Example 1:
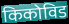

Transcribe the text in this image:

किकोविड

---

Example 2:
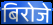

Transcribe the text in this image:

बिरोजे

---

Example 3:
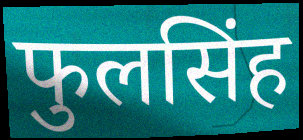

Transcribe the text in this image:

फुलसिंह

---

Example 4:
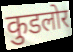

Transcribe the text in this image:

कुडलोर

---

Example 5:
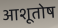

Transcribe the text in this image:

आशूतोष